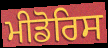
ਮੀਡੋਰਿਸ